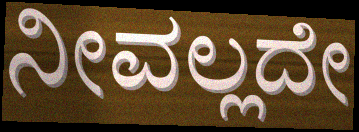
ನೀವಲ್ಲದೇ